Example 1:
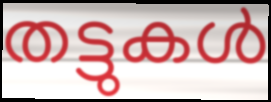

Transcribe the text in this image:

തട്ടുകൾ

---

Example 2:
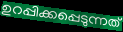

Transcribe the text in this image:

ഉറപ്പിക്കപ്പെടുന്നത്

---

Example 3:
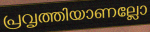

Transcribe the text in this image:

പ്രവൃത്തിയാണല്ലോ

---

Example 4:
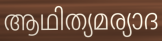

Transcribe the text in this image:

ആഥിത്യമര്യാദ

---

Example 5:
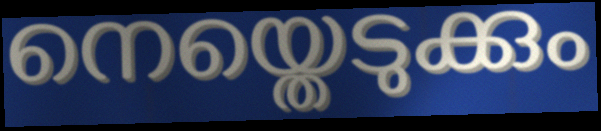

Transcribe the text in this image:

നെയ്തെടുക്കും